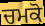
ਚਮਕੋ